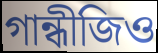
গান্ধীজিও